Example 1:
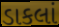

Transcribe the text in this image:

ડાકલાં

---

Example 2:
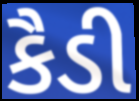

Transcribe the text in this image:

કૈડી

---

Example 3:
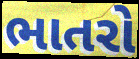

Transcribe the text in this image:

ભાતરો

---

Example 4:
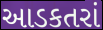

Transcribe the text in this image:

આડકતરાં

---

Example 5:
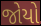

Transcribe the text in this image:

જોયો